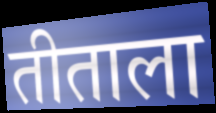
तीताला